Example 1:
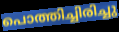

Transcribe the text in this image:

പൊത്തിച്ചിരിച്ചു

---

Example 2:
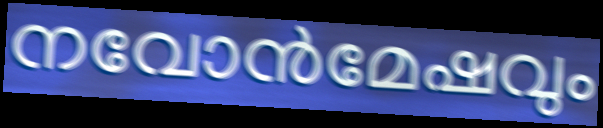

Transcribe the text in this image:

നവോൻമേഷവും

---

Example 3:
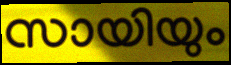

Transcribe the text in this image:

സായിയും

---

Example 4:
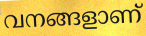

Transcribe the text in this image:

വനങ്ങളാണ്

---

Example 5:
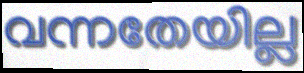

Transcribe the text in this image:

വന്നതേയില്ല